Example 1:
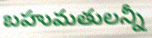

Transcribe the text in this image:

బహుమతులన్నీ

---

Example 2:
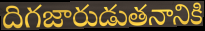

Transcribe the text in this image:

దిగజారుడుతనానికి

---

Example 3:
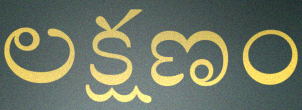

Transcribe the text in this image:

లక్షణం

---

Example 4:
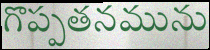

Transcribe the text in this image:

గొప్పతనమును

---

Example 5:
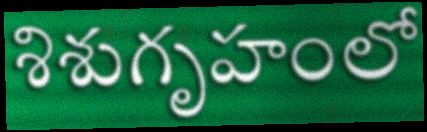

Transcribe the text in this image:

శిశుగృహంలో